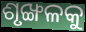
ଶୃଙ୍ଖଳକୁ